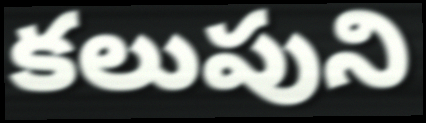
కలుపుని